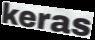
keras